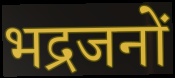
भद्रजनों